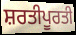
ਸ਼ਰਤੀਪੂਰਤੀ